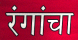
रंगांचा